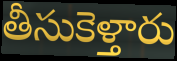
తీసుకెళ్తారు